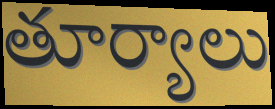
తూర్యాలు